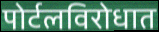
पोर्टलविरोधात